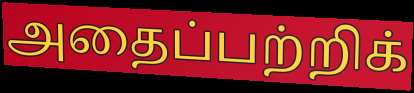
அதைப்பற்றிக்